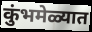
कुंभमेळ्यात